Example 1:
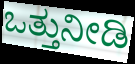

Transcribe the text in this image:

ಒತ್ತುನೀಡಿ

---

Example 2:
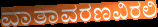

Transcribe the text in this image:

ವಾತಾವರಣವಿರಲಿ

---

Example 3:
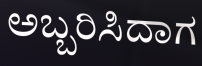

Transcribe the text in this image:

ಅಬ್ಬರಿಸಿದಾಗ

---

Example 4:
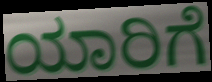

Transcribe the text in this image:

ಯಾರಿಗೆ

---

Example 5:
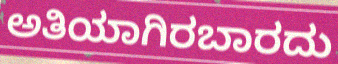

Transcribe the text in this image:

ಅತಿಯಾಗಿರಬಾರದು